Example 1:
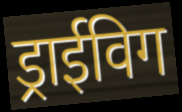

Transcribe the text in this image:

ड्राईविग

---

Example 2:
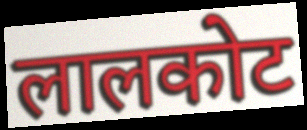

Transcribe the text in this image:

लालकोट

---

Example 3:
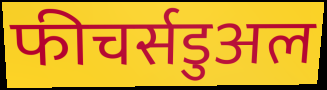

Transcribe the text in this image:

फीचर्सडुअल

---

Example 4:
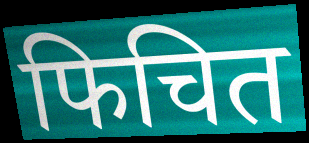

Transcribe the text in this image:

फिचित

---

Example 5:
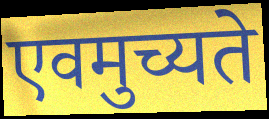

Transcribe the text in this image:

एवमुच्यते